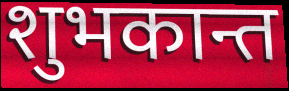
शुभकान्त